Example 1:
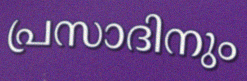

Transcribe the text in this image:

പ്രസാദിനും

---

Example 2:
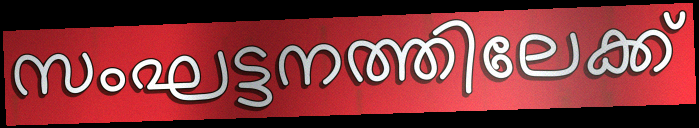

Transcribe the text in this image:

സംഘട്ടനത്തിലേക്ക്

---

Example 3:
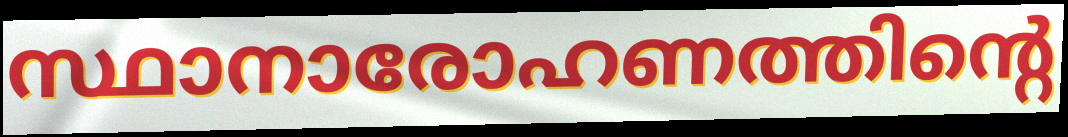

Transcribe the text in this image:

സ്ഥാനാരോഹണത്തിന്റെ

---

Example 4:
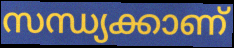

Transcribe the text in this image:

സന്ധ്യക്കാണ്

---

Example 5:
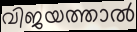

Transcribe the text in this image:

വിജയത്താൽ